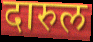
दारुल